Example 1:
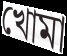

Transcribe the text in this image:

খোমা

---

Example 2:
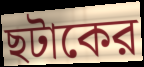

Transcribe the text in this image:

ছটাকের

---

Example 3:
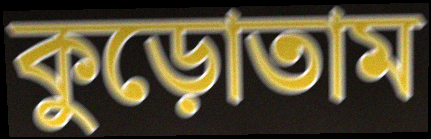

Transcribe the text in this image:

কুড়োতাম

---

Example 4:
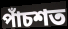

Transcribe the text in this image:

পাঁচশত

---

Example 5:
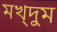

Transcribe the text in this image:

মখ্দুম